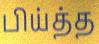
பிய்த்த